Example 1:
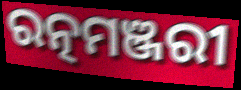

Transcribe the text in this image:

ରତ୍ନମଞ୍ଜରୀ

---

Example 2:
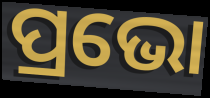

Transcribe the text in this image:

ପ୍ରଭୋ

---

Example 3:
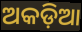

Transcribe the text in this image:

ଅକଡ଼ିଆ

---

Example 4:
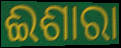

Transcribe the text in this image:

ଈଶାରା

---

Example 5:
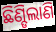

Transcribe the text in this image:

ଛିଣ୍ଡିଲାଣି